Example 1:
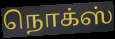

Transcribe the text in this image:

நொக்ஸ்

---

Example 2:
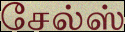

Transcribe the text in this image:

சேல்ஸ்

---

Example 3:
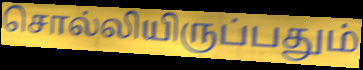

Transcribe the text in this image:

சொல்லியிருப்பதும்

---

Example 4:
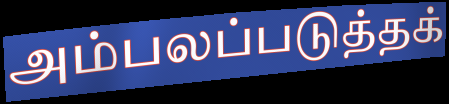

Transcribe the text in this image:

அம்பலப்படுத்தக்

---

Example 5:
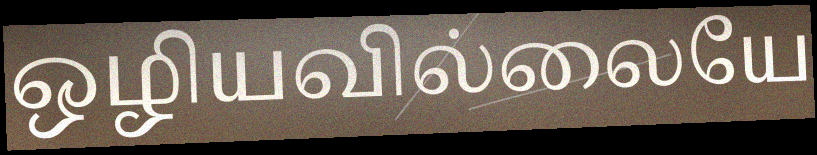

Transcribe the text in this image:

ஒழியவில்லையே